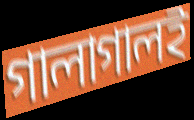
গালাগালই